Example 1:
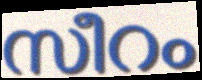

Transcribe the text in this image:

സീറം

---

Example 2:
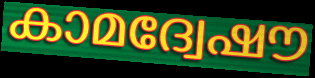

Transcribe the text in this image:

കാമദ്വേഷൗ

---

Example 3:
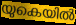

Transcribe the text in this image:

യുകെയിൽ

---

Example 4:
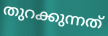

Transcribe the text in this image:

തുറക്കുന്നത്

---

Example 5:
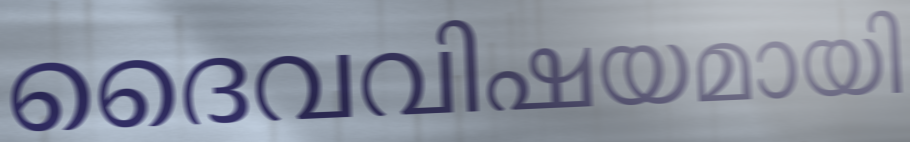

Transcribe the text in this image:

ദൈവവിഷയമായി